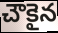
చౌకైన